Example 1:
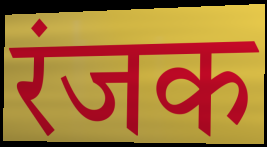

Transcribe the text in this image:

रंजक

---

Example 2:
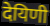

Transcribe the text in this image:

देयिणी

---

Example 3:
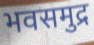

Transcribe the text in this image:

भवसमुद्र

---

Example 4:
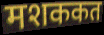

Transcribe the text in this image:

मशककत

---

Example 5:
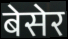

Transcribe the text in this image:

बेसेर